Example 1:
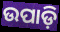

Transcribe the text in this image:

ଉପାଡ଼ି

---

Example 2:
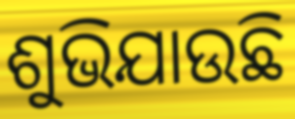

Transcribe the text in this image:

ଶୁଭିଯାଉଛି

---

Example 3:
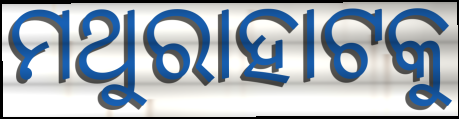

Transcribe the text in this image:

ମଥୁରାହାଟକୁ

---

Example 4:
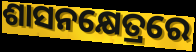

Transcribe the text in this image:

ଶାସନକ୍ଷେତ୍ରରେ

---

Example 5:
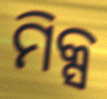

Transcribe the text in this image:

ମିକ୍ସ